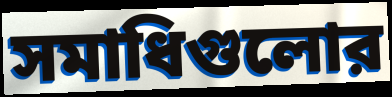
সমাধিগুলোর